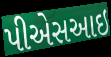
પીએસઆઇ